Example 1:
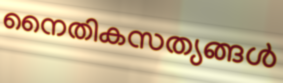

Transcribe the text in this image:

നൈതികസത്യങ്ങൾ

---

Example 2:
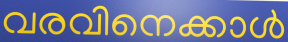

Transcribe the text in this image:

വരവിനെക്കാൾ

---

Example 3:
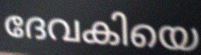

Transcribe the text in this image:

ദേവകിയെ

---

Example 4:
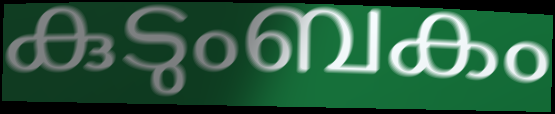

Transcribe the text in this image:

കുടുംബകം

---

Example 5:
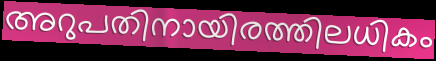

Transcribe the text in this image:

അറുപതിനായിരത്തിലധികം